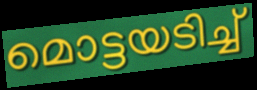
മൊട്ടയടിച്ച്